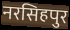
नरसिहपुर